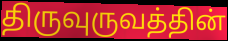
திருவுருவத்தின்